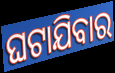
ଘଟାଯିବାର